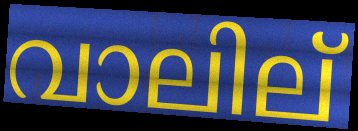
വാലില്